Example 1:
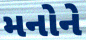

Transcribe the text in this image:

મનોને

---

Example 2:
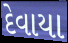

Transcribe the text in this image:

દેવાયા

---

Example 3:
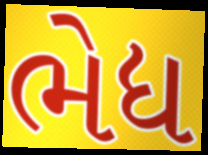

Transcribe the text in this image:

ભેદ્ય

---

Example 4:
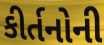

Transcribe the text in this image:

કીર્તનોની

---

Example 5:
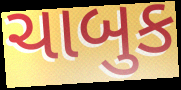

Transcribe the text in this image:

ચાબુક